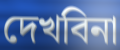
দেখবিনা